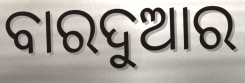
ବାରଦୁଆର